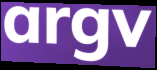
argv